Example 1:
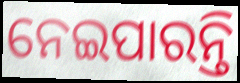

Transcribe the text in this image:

ନେଇପାରନ୍ତି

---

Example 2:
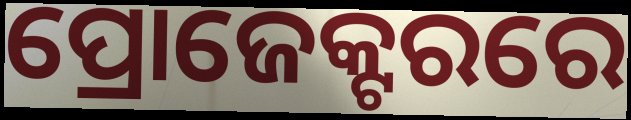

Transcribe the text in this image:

ପ୍ରୋଜେକ୍ଟରରେ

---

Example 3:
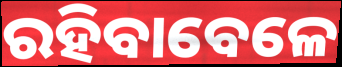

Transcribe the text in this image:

ରହିବାବେଳେ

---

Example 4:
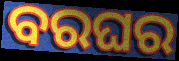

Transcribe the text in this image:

ବରଘର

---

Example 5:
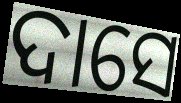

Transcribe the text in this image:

ଦାସେ